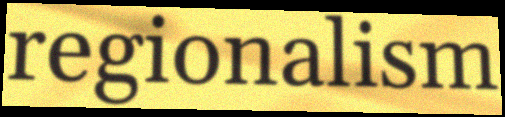
regionalism